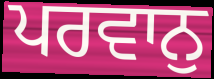
ਪਰਵਾਨੁ